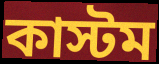
কাস্টম